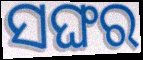
ସଙ୍ଘର